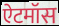
ऐटमॉस